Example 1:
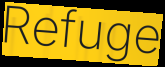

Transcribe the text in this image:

Refuge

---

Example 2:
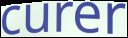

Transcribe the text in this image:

curer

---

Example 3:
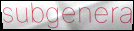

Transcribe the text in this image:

subgenera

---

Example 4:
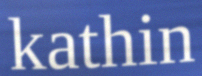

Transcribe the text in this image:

kathin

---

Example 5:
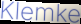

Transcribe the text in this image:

Klemke